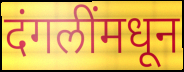
दंगलींमधून